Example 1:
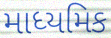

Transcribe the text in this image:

માધ્યમિક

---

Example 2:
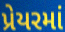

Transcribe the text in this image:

પ્રેયરમાં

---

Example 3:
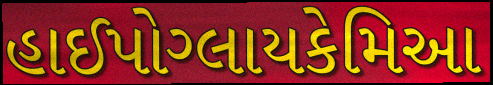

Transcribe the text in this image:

હાઈપોગ્લાયકેમિઆ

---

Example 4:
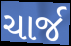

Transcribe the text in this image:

ચાર્જ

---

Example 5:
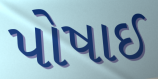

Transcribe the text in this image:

પોષાઈ